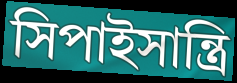
সিপাইসান্ত্রি